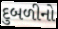
દુબળીનો